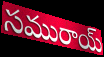
సమురాయ్